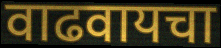
वाढवायचा